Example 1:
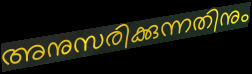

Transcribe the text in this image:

അനുസരിക്കുന്നതിനും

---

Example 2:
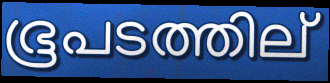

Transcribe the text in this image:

ഭൂപടത്തില്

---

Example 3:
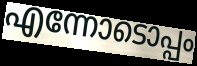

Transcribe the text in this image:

എന്നോടൊപ്പം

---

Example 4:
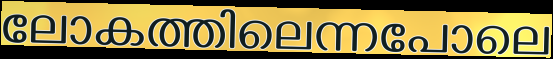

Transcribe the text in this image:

ലോകത്തിലെന്നപോലെ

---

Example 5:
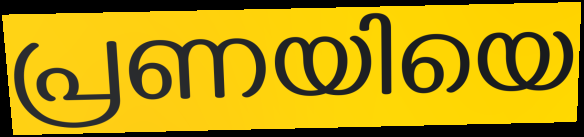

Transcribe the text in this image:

പ്രണയിയെ